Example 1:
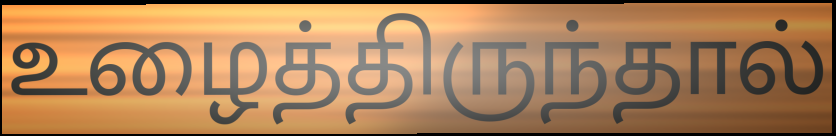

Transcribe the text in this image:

உழைத்திருந்தால்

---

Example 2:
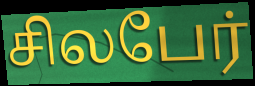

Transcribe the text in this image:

சிலபேர்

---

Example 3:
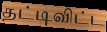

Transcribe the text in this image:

தட்டிவிட்ட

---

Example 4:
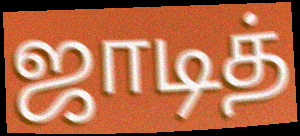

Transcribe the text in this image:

ஜாடித்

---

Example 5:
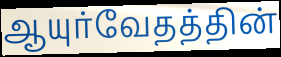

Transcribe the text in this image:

ஆயுர்வேதத்தின்